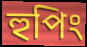
হুপিং